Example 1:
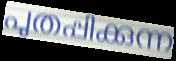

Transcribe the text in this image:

പുതപ്പിക്കുന്ന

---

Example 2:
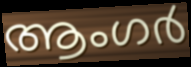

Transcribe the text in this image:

ആംഗർ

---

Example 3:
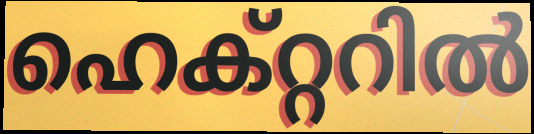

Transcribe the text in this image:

ഹെക്റ്ററിൽ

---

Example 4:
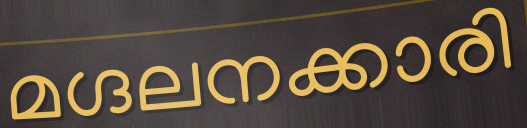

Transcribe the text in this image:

മഗ്ദലനക്കാരി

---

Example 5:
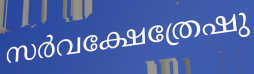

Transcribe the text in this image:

സർവക്ഷേത്രേഷു